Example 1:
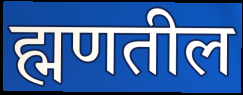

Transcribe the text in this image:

ह्मणतील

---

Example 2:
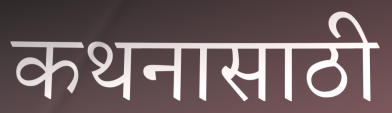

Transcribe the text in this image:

कथनासाठी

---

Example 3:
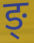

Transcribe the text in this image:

ङ्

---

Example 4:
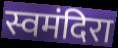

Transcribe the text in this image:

स्वमंदिरा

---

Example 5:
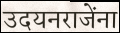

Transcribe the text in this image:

उदयनराजेंना